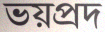
ভয়প্রদ